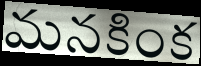
మనకింక